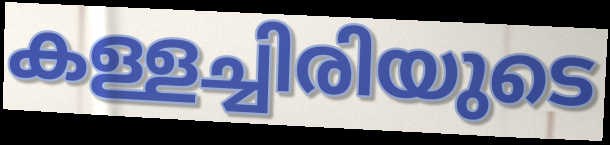
കള്ളച്ചിരിയുടെ